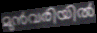
മുൻവരിയിൽ